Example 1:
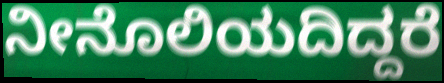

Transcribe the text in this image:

ನೀನೊಲಿಯದಿದ್ದರೆ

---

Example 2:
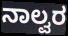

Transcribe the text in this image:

ನಾಲ್ವರ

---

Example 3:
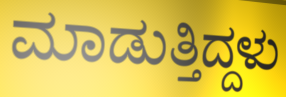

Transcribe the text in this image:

ಮಾಡುತ್ತಿದ್ದಳು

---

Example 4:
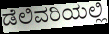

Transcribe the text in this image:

ಡೆಲಿವರಿಯಲ್ಲಿ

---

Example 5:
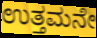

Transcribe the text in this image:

ಉತ್ತಮನೇ